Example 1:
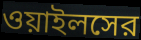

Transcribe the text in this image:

ওয়াইলসের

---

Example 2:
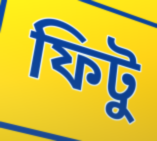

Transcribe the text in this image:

ফিটু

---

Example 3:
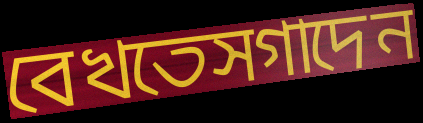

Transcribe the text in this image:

বেখতেসগাদেন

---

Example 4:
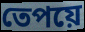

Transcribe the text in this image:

তেপয়ে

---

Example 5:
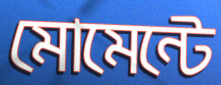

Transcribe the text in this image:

মোমেন্টে